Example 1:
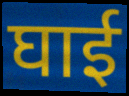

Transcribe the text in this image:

घाई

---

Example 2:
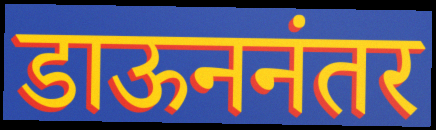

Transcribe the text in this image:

डाऊननंतर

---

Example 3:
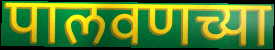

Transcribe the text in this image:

पालवणच्या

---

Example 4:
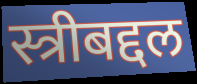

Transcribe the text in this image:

स्त्रीबद्दल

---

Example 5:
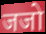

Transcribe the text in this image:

जजो